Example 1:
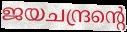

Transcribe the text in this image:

ജയചന്ദ്രന്റെ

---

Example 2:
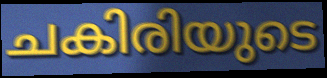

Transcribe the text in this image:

ചകിരിയുടെ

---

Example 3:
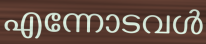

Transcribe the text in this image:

എന്നോടവൾ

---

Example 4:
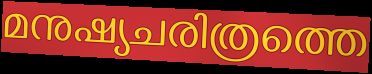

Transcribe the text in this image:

മനുഷ്യചരിത്രത്തെ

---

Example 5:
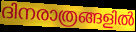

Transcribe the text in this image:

ദിനരാത്രങ്ങളിൽ